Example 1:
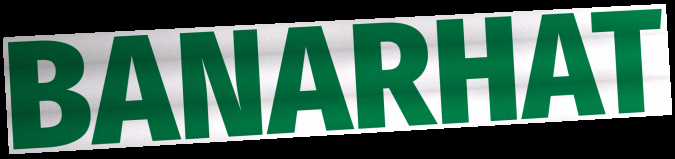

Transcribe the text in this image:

BANARHAT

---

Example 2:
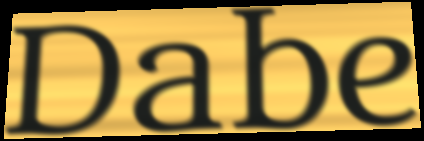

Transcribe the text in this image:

Dabe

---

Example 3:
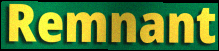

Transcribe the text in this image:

Remnant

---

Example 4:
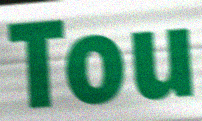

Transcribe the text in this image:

Tou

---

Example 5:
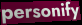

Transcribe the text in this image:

personify